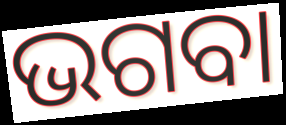
ଭଗବା